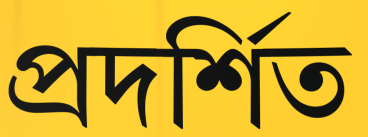
প্ৰদৰ্শিত